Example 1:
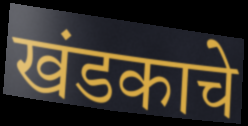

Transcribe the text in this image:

खंडकाचे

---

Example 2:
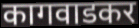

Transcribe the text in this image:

कागवाडकर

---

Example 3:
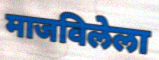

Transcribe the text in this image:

माजविलेला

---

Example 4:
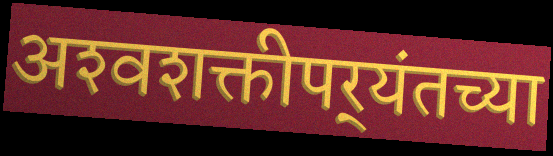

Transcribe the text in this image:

अश्वशक्तीपर्यंतच्या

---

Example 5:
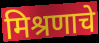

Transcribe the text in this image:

मिश्रणाचे